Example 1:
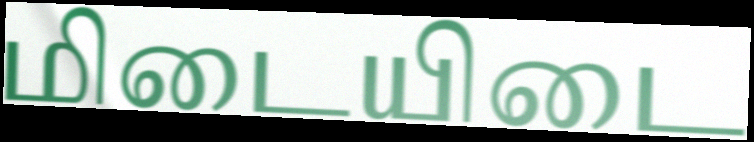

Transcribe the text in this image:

மிடையிடை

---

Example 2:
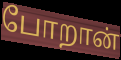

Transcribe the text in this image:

போறான்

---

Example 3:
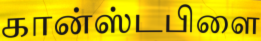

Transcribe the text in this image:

கான்ஸ்டபிளை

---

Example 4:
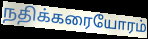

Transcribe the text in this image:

நதிக்கரையோரம்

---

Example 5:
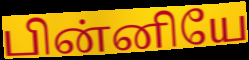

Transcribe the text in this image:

பின்னியே